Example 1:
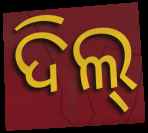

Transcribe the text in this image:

ଦିଲ୍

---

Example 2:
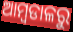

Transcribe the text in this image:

ଆମ୍ବଡାଳରୁ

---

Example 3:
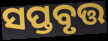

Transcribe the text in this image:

ସପ୍ତବୃତ୍ତ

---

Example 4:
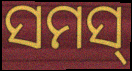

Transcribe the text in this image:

ସମସ୍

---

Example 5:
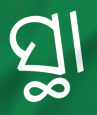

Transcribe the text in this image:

ସ୍ଥା